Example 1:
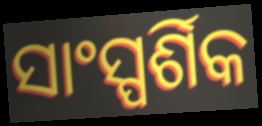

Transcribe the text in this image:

ସାଂସ୍ପର୍ଶିକ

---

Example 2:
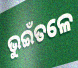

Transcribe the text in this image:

ଭୁଇଁତଳେ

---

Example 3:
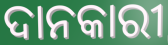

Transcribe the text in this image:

ଦାନକାରୀ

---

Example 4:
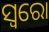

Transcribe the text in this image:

ସ୍ୱରୋ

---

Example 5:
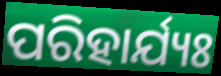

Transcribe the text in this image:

ପରିହାର୍ଯ୍ୟଃ